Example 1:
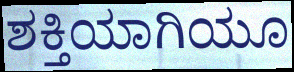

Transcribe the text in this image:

ಶಕ್ತಿಯಾಗಿಯೂ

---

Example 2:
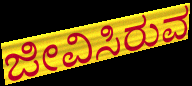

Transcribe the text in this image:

ಜೀವಿಸಿರುವ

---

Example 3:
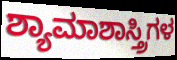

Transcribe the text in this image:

ಶ್ಯಾಮಾಶಾಸ್ತ್ರಿಗಳ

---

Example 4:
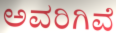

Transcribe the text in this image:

ಅವರಿಗಿವೆ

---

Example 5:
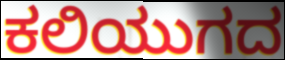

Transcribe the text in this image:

ಕಲಿಯುಗದ